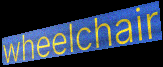
wheelchair